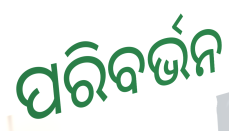
ପରିବର୍ଭନ